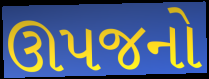
ઊપજનો